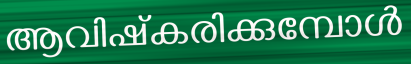
ആവിഷ്‌കരിക്കുമ്പോൾ